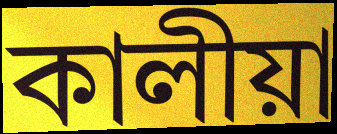
কালীয়া